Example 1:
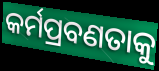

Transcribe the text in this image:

କର୍ମପ୍ରବଣତାକୁ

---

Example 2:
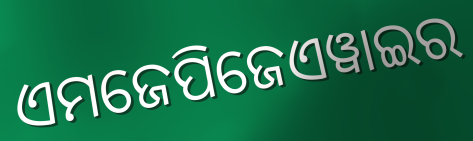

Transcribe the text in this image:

ଏମଜେପିଜେଏୱାଇର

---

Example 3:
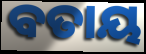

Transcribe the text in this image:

ବତାୟ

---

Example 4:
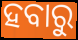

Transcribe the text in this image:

ହବାରୁ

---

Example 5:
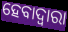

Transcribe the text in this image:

ହେବାଦ୍ୱାରା